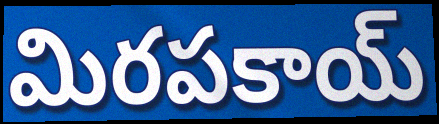
మిరపకాయ్